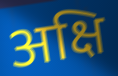
अक्षि